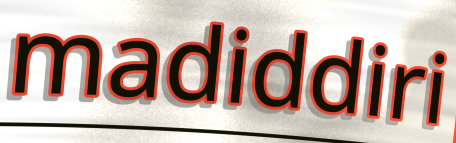
madiddiri